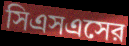
সিএসএসের